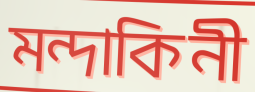
মন্দাকিনী